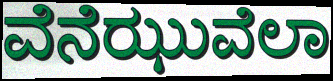
ವೆನೆಝುವೆಲಾ